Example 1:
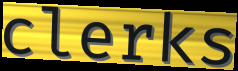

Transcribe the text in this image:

clerks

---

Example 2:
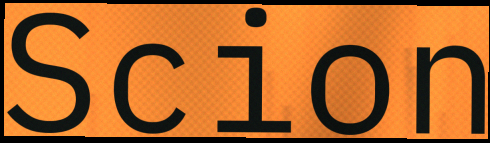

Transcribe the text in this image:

Scion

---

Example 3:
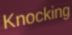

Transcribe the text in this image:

Knocking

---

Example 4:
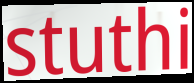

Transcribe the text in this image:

stuthi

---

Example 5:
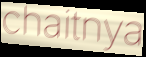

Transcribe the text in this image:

chaitnya